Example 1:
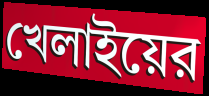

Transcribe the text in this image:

খেলাইয়ের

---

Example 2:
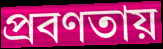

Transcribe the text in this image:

প্রবণতায়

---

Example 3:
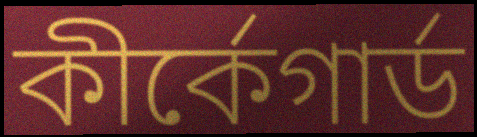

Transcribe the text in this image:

কীর্কেগার্ড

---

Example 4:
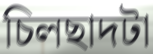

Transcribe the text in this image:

চিলছাদটা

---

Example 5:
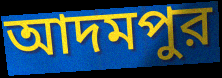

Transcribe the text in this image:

আদমপুর